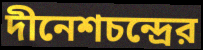
দীনেশচন্দ্রের